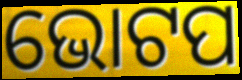
ଭୋଟପ